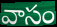
వాసం